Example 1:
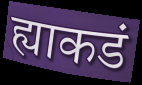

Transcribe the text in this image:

ह्याकडं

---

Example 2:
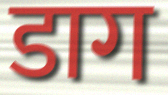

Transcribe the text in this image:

डाग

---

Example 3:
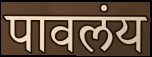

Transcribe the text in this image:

पावलंय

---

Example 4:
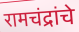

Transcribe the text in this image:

रामचंद्रांचे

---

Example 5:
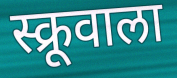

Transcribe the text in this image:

स्क्रूवाला